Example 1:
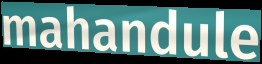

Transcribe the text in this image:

mahandule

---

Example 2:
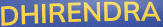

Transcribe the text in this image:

DHIRENDRA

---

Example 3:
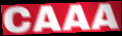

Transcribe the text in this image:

CAAA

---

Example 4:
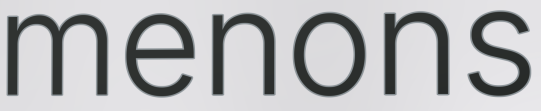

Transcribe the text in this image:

menons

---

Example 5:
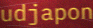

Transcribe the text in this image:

udjapon